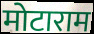
मोटाराम